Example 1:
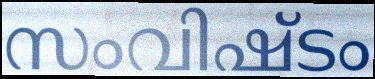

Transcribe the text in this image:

സംവിഷ്ടം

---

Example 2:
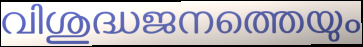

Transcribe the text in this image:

വിശുദ്ധജനത്തെയും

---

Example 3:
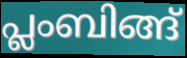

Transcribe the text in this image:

പ്ലംബിങ്ങ്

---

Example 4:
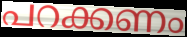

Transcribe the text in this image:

പറക്കണം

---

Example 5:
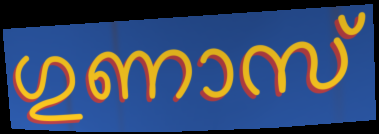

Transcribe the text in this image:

ഗുണാസ്